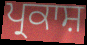
ਪ੍ਰਕਾਸ਼